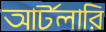
আর্টলারি